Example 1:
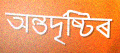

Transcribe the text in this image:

অন্তৰ্দৃষ্টিৰ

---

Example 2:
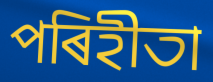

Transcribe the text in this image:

পৰিহীতা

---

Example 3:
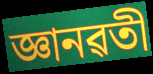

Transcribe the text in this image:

জ্ঞানৱতী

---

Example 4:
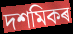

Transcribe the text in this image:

দশমিকৰ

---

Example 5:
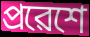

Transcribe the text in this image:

প্ৰৱেশে